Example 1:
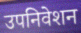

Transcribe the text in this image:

उपनिवेशन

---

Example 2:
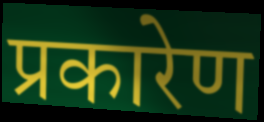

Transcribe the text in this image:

प्रकारेण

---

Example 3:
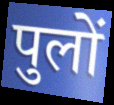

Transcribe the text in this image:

पुलों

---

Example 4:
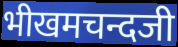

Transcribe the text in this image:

भीखमचन्दजी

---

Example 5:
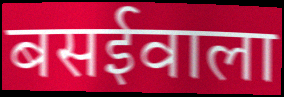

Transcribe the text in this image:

बसईवाला